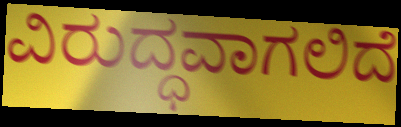
ವಿರುದ್ಧವಾಗಲಿದೆ